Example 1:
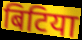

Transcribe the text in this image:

बिटिया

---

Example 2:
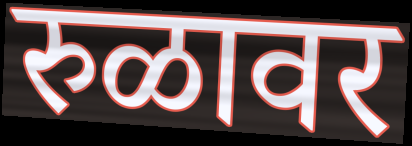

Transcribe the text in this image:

रुळावर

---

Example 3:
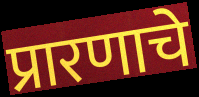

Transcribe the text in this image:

प्रारणाचे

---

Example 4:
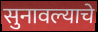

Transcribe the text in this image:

सुनावल्याचे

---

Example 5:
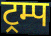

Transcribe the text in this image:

ट्रम्‍प